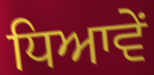
ਧਿਆਵੇਂ